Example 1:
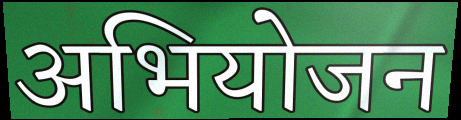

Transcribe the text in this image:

अभियोजन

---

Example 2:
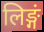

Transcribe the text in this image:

लिङ्गं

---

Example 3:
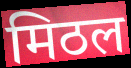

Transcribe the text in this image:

मिठल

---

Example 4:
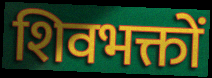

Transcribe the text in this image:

शिवभक्तों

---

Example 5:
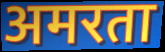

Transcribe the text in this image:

अमरता